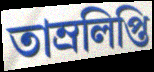
তাম্রলিপ্তি